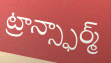
ట్రాన్స్ఫార్మ్